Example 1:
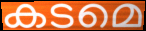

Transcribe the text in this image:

കടമെ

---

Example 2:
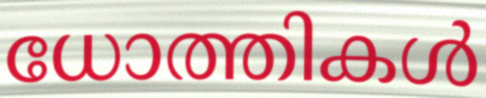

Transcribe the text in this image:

ധോത്തികൾ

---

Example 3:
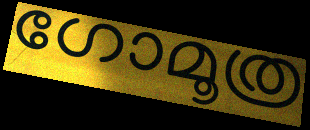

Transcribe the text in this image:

ഗോമൂത്ര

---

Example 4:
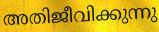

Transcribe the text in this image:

അതിജീവിക്കുന്നു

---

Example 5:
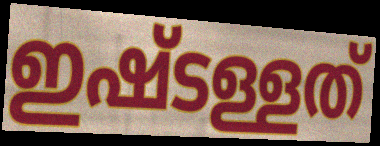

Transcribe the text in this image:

ഇഷ്ടള്ളത്